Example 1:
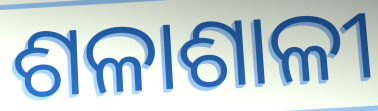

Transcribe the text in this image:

ଶଳାଶାଳୀ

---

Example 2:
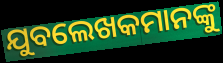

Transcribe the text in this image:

ଯୁବଲେଖକମାନଙ୍କୁ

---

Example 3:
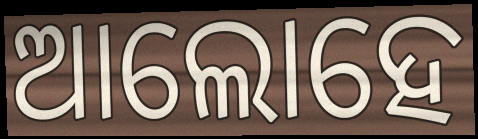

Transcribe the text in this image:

ଆଲୋହେ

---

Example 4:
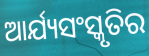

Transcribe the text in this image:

ଆର୍ଯ୍ୟସଂସ୍କୃତିର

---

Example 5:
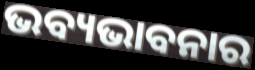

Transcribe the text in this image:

ଭବ୍ୟଭାବନାର